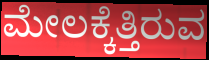
ಮೇಲಕ್ಕೆತ್ತಿರುವ